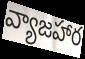
వ్యాజహార